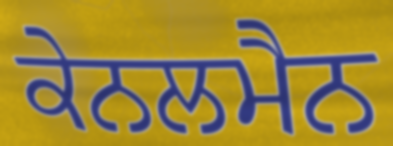
ਕੇਨਲਮੈਨ